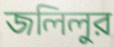
জলিলুর